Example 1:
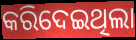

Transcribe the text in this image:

କରିଦେଇଥିଲା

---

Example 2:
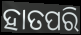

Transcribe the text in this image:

ହାତପରି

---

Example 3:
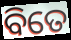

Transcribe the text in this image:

ବିତେ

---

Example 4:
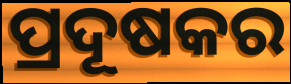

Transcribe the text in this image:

ପ୍ରଦୂଷକର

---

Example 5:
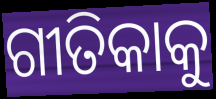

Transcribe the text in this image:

ଗୀତିକାକୁ